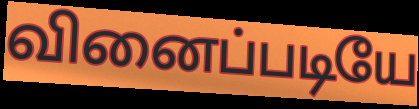
வினைப்படியே